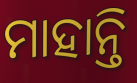
ମାହାନ୍ତି